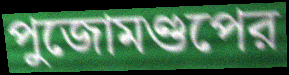
পুজোমণ্ডপের